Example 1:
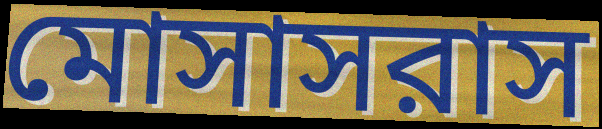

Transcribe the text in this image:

মোসাসরাস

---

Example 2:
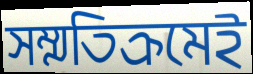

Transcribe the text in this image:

সম্মতিক্রমেই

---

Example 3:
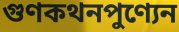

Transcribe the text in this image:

গুণকথনপুণ্যেন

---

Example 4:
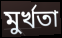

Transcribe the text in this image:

মুর্খতা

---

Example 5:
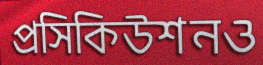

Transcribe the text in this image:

প্রসিকিউশনও